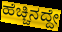
ಹೆಚ್ಚಿನದ್ದೇ